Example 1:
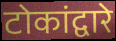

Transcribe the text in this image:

टोकांद्वारे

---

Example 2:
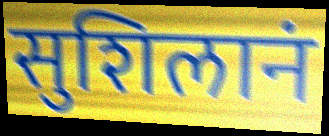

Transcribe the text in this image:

सुशिलानं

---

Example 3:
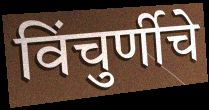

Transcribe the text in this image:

विंचुर्णीचे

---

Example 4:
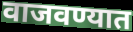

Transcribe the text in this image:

वाजवण्यात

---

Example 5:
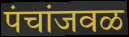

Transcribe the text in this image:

पंचांजवळ